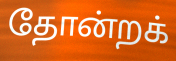
தோன்றக்